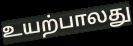
உயற்பாலது